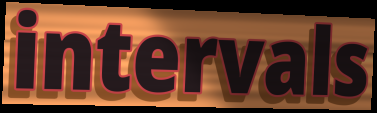
intervals